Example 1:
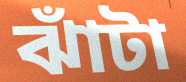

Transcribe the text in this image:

ঝাঁটা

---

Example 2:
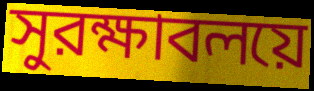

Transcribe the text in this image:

সুরক্ষাবলয়ে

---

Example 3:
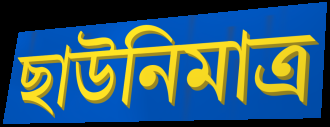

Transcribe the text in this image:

ছাউনিমাত্র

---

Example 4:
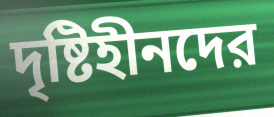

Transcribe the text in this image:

দৃষ্টিহীনদের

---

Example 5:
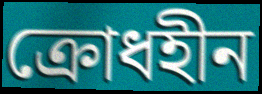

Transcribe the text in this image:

ক্রোধহীন